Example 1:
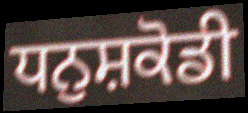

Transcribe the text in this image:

ਧਨੁਸ਼ਕੋਡੀ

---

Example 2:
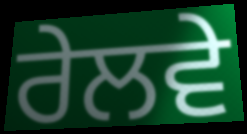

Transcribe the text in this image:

ਰੇਲਵੇ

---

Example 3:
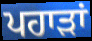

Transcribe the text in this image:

ਪਹਾੜਾਂ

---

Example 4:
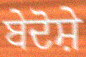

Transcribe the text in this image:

ਬੇਦੋਸ਼ੇ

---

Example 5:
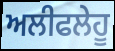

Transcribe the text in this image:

ਅਲੀਫਲੇਹੂ